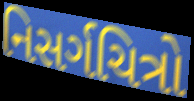
નિસર્ગચિત્રો